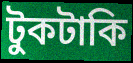
টুকটাকি